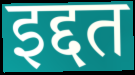
इद्दत